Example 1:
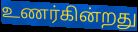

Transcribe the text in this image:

உணர்கின்றது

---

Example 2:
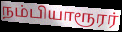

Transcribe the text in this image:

நம்பியாரூரர்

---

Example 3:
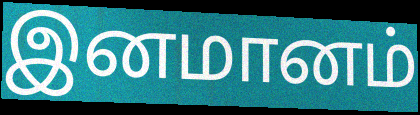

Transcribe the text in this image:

இனமானம்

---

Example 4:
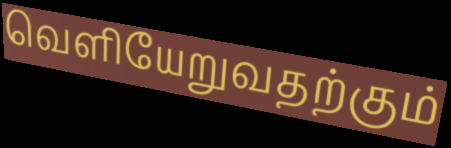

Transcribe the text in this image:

வெளியேறுவதற்கும்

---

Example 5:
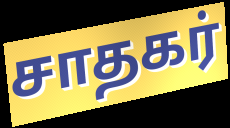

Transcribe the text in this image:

சாதகர்